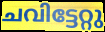
ചവിട്ടേറ്റു